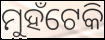
ମୁହଁଟେକି